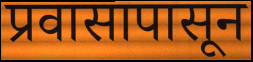
प्रवासापासून